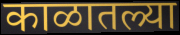
काळातल्या